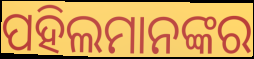
ପହିଲମାନଙ୍କର